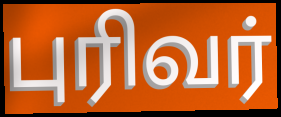
புரிவர்